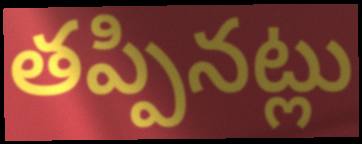
తప్పినట్లు